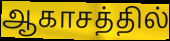
ஆகாசத்தில்